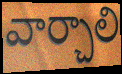
వార్చాలి